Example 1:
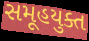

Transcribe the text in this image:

સમૂહયુક્ત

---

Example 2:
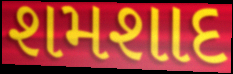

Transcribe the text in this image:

શમશાદ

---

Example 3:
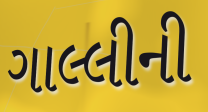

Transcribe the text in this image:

ગાલ્લીની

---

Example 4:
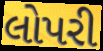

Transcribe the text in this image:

લોપરી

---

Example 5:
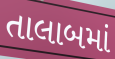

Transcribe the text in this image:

તાલાબમાં